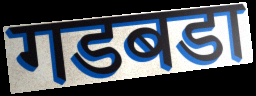
गडबडा